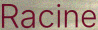
Racine